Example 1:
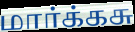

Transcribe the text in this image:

மார்க்கசு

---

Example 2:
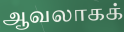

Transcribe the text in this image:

ஆவலாகக்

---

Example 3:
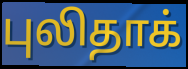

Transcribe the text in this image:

புலிதாக்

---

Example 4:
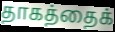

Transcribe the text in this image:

தாகத்தைக்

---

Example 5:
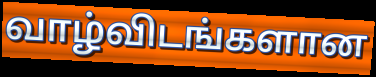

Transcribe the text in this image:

வாழ்விடங்களான